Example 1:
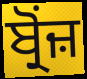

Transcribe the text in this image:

ਬ੍ਰੋਂਜ਼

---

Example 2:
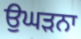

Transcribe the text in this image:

ਉਘੜਨਾ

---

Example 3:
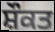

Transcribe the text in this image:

ਸ਼ੌਕਤ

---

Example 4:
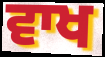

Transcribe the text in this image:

ਵਾਖ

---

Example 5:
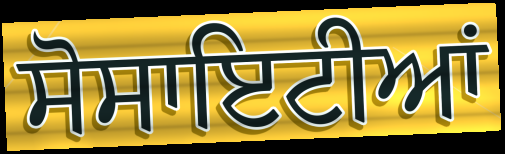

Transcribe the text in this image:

ਸੋਸਾਇਟੀਆਂ